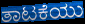
ತಾಟಕೆಯು